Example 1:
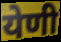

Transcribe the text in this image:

येणी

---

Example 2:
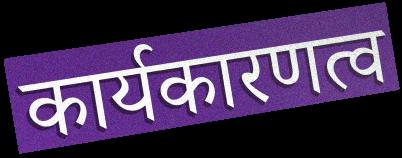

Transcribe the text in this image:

कार्यकारणत्व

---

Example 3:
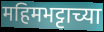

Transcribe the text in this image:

महिमभट्टाच्या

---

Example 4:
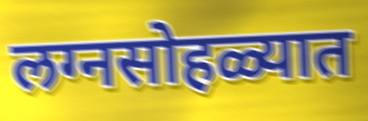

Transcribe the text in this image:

लग्नसोहळ्यात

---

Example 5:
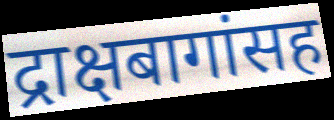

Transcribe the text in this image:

द्राक्षबागांसह